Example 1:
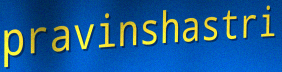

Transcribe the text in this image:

pravinshastri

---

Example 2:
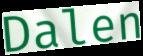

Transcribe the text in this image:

Dalen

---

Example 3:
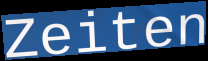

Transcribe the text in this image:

Zeiten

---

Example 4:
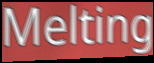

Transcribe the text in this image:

Melting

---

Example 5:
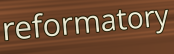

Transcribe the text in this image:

reformatory